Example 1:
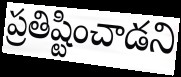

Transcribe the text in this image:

ప్రతిష్టించాడని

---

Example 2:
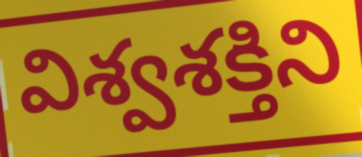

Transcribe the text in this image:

విశ్వశక్తిని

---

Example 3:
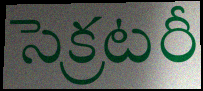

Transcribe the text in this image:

సెక్రటరీ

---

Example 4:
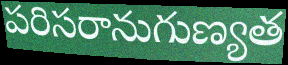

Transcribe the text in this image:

పరిసరానుగుణ్యత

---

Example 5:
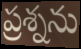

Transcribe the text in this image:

ప్రశ్నను